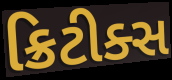
ક્રિટીક્સ